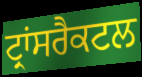
ਟ੍ਰਾਂਸਰੈਕਟਲ